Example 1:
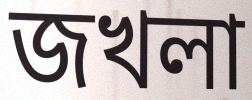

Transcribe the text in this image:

জখলা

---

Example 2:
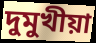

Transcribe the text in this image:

দুমুখীয়া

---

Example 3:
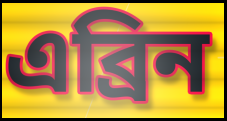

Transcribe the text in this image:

এব্ৰিন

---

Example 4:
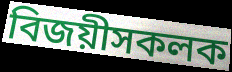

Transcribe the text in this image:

বিজয়ীসকলক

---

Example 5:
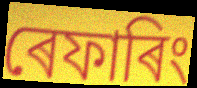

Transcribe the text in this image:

ৰেফাৰিং